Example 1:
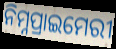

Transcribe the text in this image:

ନିମ୍ନପ୍ରାଇମେରୀ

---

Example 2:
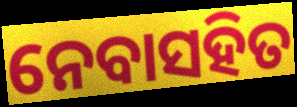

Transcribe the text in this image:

ନେବାସହିତ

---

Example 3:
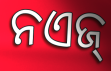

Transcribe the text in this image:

ନଏଜ୍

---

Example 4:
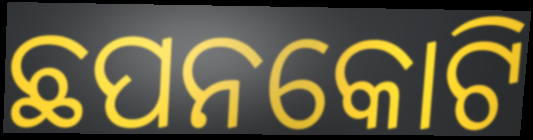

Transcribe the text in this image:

ଛପନକୋଟି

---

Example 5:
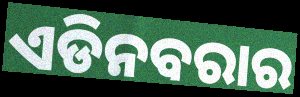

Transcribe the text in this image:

ଏଡିନବରାର